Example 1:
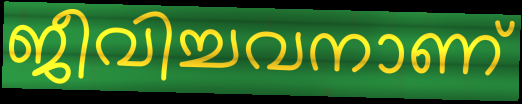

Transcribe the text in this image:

ജീവിച്ചവനാണ്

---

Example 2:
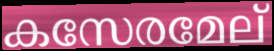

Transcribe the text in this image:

കസേരമേല്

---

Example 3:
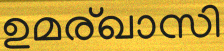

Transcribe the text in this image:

ഉമര്ഖാസി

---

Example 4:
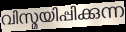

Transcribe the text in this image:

വിസ്മയിപ്പിക്കുന്ന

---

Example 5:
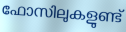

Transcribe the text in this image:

ഫോസിലുകളുണ്ട്